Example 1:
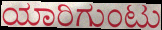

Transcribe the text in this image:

ಯಾರಿಗುಂಟು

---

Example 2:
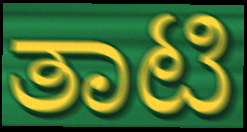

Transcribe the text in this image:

ತಾಟಿ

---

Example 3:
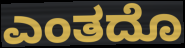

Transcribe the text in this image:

ಎಂತದೊ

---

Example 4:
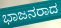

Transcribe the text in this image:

ಭಾಜನರಾದ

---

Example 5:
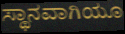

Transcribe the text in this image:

ಸ್ಥಾನವಾಗಿಯೂ